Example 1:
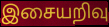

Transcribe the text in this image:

இசையறிவு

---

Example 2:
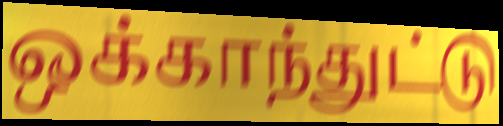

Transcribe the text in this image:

ஒக்காந்துட்டு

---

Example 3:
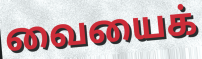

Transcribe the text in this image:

வையைக்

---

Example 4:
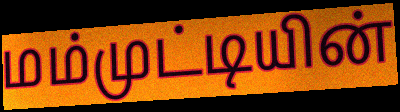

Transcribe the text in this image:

மம்முட்டியின்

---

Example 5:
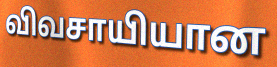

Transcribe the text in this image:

விவசாயியான